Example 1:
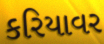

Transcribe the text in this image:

કરિયાવર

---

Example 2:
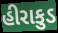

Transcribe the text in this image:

હીરાકુડ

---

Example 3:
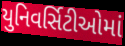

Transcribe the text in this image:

યુનિવર્સિટીઓમાં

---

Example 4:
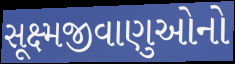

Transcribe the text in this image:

સૂક્ષ્મજીવાણુઓનો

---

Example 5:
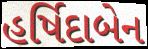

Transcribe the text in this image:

હર્ષિદાબેન